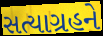
સત્યાગ્રહને